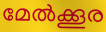
മേൽക്കൂര